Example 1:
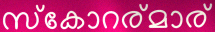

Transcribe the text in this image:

സ്കോറര്മാര്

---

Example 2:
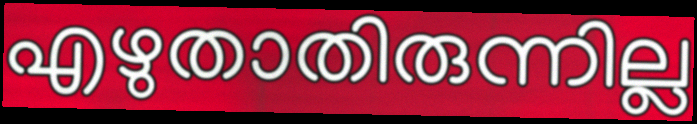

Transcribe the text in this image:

എഴുതാതിരുന്നില്ല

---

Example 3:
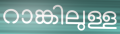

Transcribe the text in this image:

റാങ്കിലുള്ള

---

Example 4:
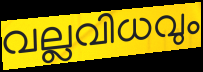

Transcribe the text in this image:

വല്ലവിധവും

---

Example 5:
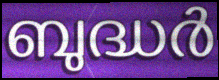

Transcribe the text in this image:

ബുദ്ധർ